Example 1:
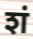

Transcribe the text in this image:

शं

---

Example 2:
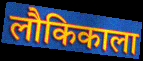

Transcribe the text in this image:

लौकिकाला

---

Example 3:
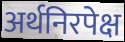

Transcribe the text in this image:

अर्थनिरपेक्ष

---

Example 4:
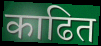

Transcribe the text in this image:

काढित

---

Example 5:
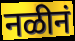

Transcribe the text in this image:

नळीनं